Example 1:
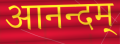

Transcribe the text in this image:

आनन्दम्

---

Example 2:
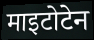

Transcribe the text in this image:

माइटोटेन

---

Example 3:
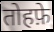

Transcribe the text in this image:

तोहफ़े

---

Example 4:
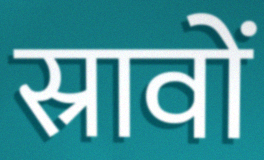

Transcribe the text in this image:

स्रावों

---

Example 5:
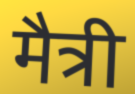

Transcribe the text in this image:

मैत्री